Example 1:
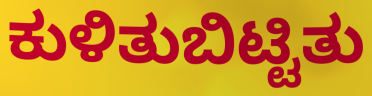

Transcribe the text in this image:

ಕುಳಿತುಬಿಟ್ಟಿತು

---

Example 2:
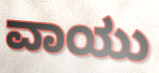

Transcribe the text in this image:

ವಾಯು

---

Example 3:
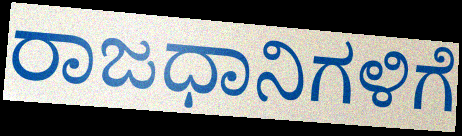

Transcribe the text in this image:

ರಾಜಧಾನಿಗಳಿಗೆ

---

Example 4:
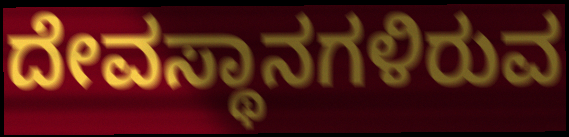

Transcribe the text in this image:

ದೇವಸ್ಥಾನಗಳಿರುವ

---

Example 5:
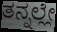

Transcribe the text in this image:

ತನ್ನಲ್ಲೇ